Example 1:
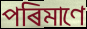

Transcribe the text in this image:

পৰিমাণে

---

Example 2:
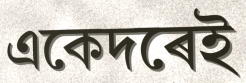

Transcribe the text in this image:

একেদৰেই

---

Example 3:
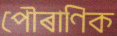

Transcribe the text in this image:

পৌৰাণিক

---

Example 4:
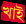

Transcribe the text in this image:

খাই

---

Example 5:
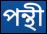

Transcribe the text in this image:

পন্থী